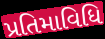
પ્રતિમાવિધિ